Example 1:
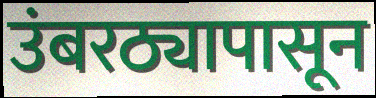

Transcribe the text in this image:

उंबरठ्यापासून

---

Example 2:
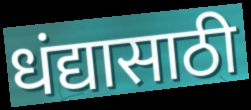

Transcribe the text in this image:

धंद्यासाठी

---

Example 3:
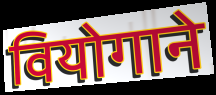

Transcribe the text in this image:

वियोगाने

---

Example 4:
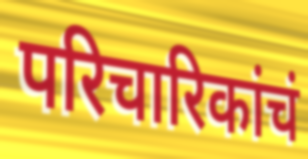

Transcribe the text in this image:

परिचारिकांचं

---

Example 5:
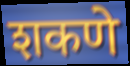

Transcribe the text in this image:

शकणे